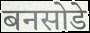
बनसोडे